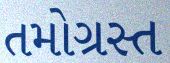
તમોગ્રસ્ત